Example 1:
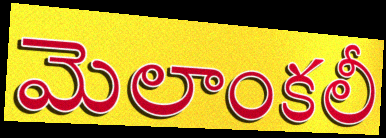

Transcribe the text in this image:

మెలాంకలీ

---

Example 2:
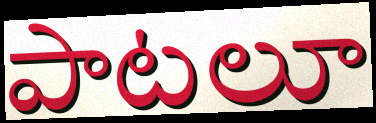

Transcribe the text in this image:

పాటలూ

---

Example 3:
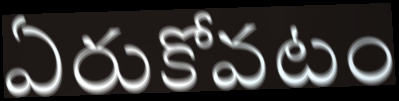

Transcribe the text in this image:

ఏరుకోవటం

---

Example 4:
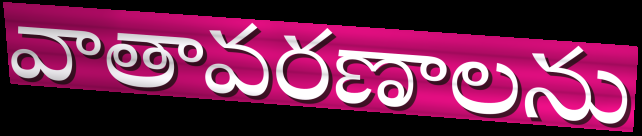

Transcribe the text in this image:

వాతావరణాలను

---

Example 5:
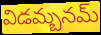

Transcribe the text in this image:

విడమ్బనమ్